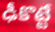
ఢీకొట్టే